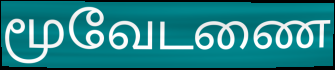
மூவேடணை